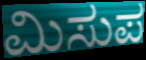
ಮಿಸುಪ